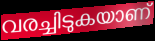
വരച്ചിടുകയാണ്